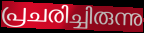
പ്രചരിച്ചിരുന്നു